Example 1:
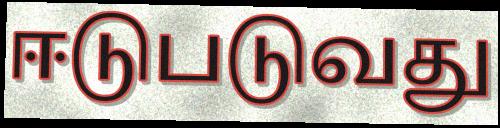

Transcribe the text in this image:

ஈடுபடுவது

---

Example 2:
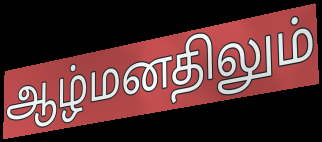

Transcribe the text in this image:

ஆழ்மனதிலும்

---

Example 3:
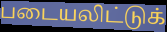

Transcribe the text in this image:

படையலிட்டுக்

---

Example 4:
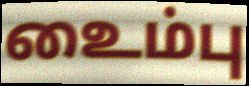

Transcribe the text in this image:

உைம்பு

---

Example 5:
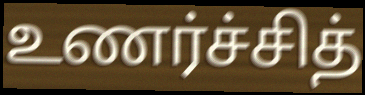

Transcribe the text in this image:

உணர்ச்சித்